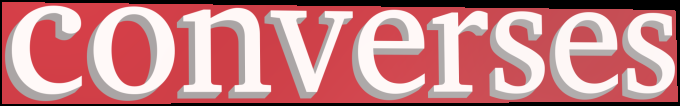
converses